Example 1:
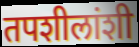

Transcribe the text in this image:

तपशीलांशी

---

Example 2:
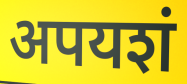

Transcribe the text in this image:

अपयशं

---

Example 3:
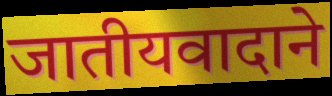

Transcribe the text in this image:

जातीयवादाने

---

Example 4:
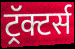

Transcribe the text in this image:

ट्रॅक्टर्स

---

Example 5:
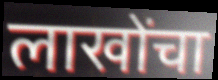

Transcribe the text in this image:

लाखोंचा